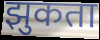
झुकता